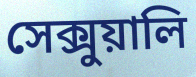
সেক্সুয়ালি